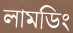
লামডিং